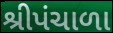
શ્રીપંચાળા